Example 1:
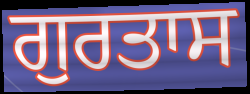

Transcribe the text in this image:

ਗੁਰਤਾਸ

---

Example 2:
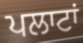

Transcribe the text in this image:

ਪਲਾਟਾਂ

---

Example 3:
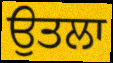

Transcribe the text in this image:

ਉਤਲਾ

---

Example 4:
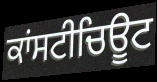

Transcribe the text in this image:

ਕਾਂਸਟੀਚਿਊਟ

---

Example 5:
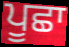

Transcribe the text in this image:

ਪੂਛਾ